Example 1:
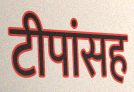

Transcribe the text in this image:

टीपांसह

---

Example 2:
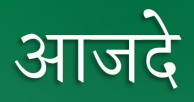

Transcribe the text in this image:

आजदे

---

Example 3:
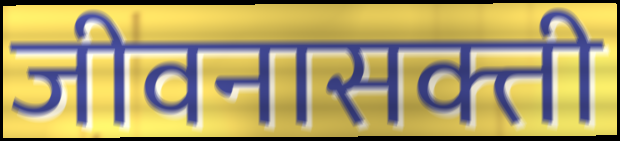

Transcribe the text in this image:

जीवनासक्ती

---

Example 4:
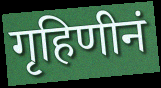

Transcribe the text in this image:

गृहिणीनं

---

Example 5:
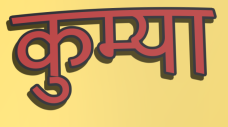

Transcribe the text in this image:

कुम्या